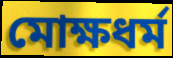
মোক্ষধর্ম